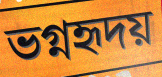
ভগ্নহৃদয়